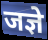
जज्ञे